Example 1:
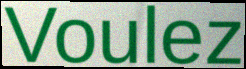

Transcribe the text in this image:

Voulez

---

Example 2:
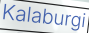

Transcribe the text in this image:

Kalaburgi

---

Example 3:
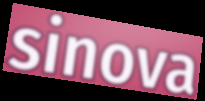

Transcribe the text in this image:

sinova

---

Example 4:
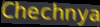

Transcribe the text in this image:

Chechnya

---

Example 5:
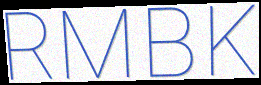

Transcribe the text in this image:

RMBK